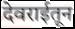
देवराईतून